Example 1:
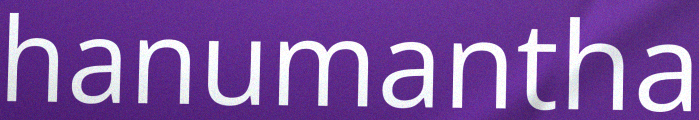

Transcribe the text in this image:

hanumantha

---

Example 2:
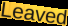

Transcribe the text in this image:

Leaved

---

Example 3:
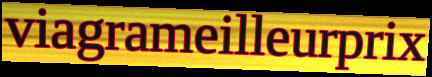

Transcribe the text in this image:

viagrameilleurprix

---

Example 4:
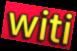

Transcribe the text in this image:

witi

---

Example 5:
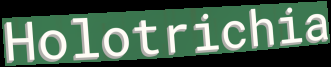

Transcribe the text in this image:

Holotrichia